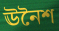
ঊনৈশ